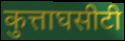
कुत्ताघसीटी